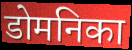
डोमनिका